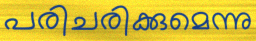
പരിചരിക്കുമെന്നു